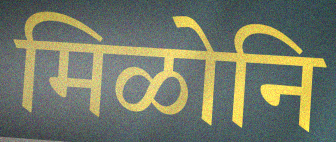
मिळोनि